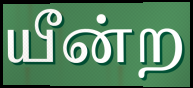
யீன்ற